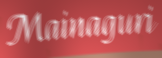
Mainaguri